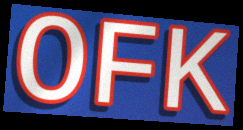
OFK